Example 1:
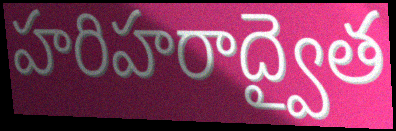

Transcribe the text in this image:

హరిహరాద్వైత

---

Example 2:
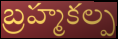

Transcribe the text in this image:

బ్రహ్మకల్ప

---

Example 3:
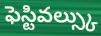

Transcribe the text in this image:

ఫెస్టివల్స్కు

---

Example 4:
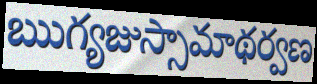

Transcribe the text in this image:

ఋగ్యజుస్సామాథర్వణ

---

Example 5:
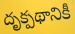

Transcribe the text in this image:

దృక్పథానికీ